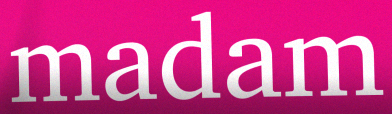
madam